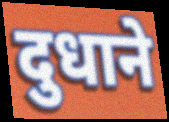
दुधाने